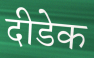
दीडेक